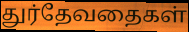
துர்தேவதைகள்